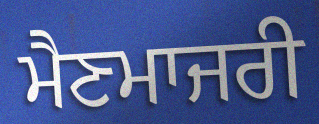
ਮੈਣਮਾਜਰੀ